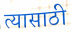
त्यासाठी